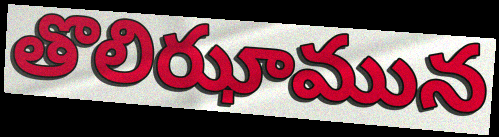
తొలిఝామున